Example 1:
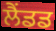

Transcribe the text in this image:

ਲੈਂਡਡ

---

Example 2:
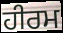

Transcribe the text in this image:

ਹੀਰਮ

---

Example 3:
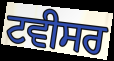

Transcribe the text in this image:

ਟਵੀਸਰ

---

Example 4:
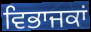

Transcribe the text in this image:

ਵਿਭਾਜਕਾਂ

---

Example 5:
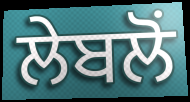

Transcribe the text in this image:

ਲੇਬਲੋਂ